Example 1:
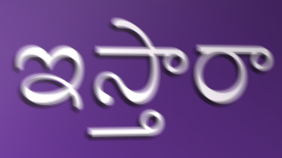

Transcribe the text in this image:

ఇస్తారా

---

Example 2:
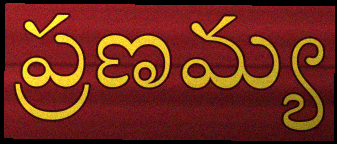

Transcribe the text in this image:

ప్రణమ్య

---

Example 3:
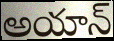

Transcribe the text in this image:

అయాన్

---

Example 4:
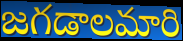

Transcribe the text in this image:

జగడాలమారి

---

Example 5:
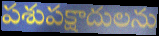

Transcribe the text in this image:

పశుపక్షాదులను